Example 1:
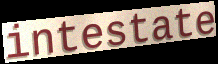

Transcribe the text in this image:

intestate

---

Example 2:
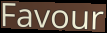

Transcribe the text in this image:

Favour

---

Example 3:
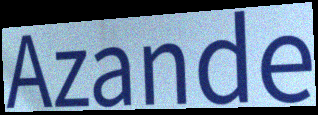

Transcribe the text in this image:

Azande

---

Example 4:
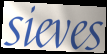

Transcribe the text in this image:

sieves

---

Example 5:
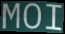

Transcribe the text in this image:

MOI